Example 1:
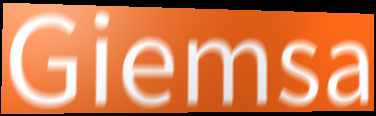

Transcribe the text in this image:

Giemsa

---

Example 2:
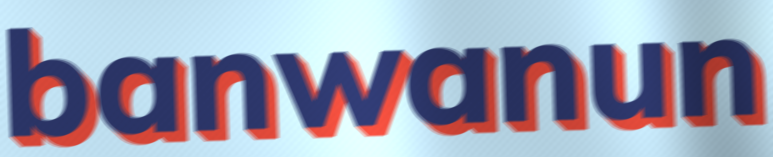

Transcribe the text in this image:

banwanun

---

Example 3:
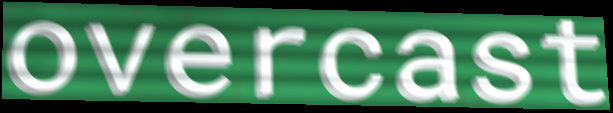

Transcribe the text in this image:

overcast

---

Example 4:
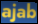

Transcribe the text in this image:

ajab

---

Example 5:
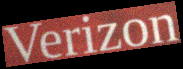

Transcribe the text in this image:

Verizon